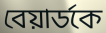
বেয়ার্ডকে